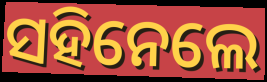
ସହିନେଲେ